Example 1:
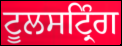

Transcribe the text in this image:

ਟੂਲਸਟ੍ਰਿੰਗ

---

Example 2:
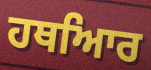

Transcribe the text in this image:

ਹਥਆਿਰ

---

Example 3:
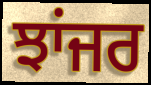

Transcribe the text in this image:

ਝਾਂਜਰ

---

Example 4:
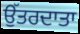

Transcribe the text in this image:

ਉੱਤਰਦਾਤਾ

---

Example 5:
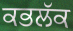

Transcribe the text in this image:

ਕਭਲੱਕ